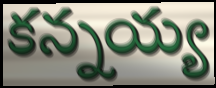
కన్నయ్య